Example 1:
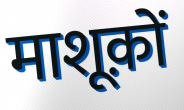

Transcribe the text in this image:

माशूक़ों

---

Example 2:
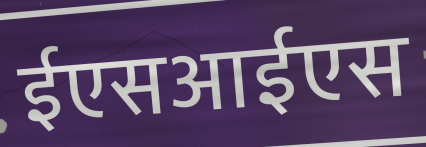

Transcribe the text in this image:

ईएसआईएस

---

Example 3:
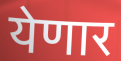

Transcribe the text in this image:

येणार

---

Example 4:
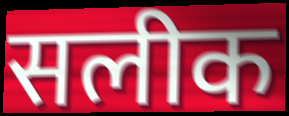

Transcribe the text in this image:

सलीक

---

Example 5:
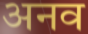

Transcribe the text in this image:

अनव